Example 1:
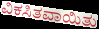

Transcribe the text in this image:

ವಿಕಸಿತವಾಯಿತು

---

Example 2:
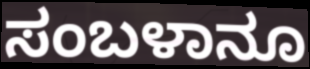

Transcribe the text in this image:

ಸಂಬಳಾನೂ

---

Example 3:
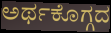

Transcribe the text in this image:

ಅರ್ಥಕೊಗ್ಗದ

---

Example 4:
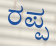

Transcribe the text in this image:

ರಪ್ಪ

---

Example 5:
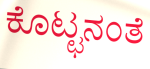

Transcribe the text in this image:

ಕೊಟ್ಟನಂತೆ